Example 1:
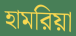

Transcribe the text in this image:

হামরিয়া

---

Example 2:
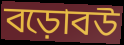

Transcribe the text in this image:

বড়োবউ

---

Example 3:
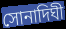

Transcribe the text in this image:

সোনাদিঘী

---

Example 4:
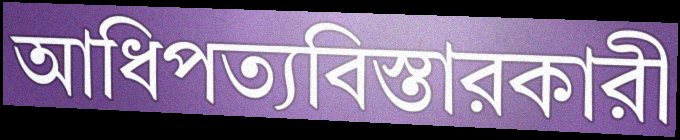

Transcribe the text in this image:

আধিপত্যবিস্তারকারী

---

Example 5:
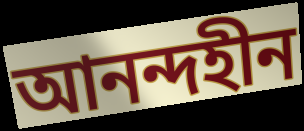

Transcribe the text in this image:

আনন্দহীন